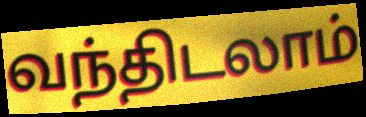
வந்திடலாம்